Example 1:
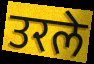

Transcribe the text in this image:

उरले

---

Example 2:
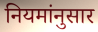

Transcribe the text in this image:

नियमांनुसार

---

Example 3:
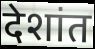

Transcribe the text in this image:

देशांत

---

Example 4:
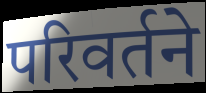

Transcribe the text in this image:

परिवर्तने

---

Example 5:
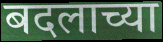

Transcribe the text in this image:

बदलाच्या